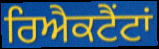
ਰਿਐਕਟੈਂਟਾਂ